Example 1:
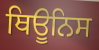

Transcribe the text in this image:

ਥਿਊਨਿਸ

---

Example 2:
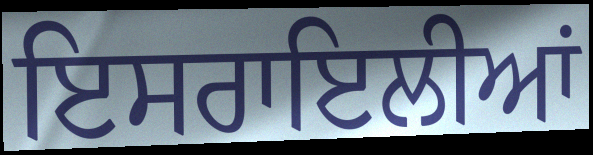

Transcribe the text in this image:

ਇਸਰਾਇਲੀਆਂ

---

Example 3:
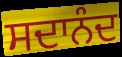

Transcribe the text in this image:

ਸਦਾਨੰਦ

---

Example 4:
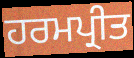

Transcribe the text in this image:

ਹਰਮਪ੍ਰੀਤ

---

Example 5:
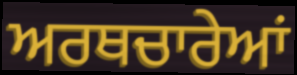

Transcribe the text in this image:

ਅਰਥਚਾਰੇਆਂ